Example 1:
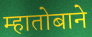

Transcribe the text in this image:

म्हातोबाने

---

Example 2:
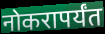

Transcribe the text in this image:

नोकरापर्यंत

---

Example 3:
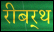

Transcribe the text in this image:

रीबर्थ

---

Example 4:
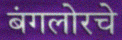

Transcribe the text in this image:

बंगलोरचे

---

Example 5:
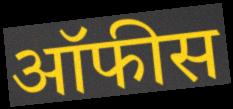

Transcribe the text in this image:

ऑफीस